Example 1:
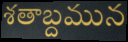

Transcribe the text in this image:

శతాబ్దమున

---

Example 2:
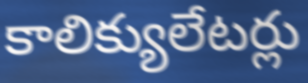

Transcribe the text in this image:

కాలిక్యులేటర్లు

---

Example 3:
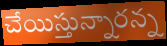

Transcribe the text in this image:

చేయిస్తున్నారన్న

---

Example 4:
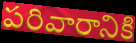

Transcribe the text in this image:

పరివారానికి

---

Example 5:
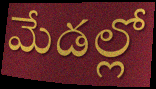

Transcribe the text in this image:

మేడల్లో